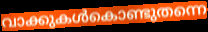
വാക്കുകൾകൊണ്ടുതന്നെ